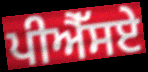
ਪੀਐੱਸਏ